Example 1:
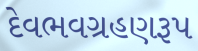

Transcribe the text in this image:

દેવભવગ્રહણરૂપ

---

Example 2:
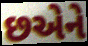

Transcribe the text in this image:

છએને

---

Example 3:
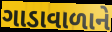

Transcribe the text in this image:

ગાડાવાળાને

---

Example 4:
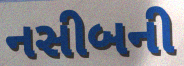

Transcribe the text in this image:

નસીબની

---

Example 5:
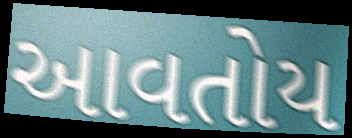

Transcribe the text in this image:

આવતોય